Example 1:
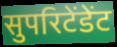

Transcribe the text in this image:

सुपरिटेंडेंट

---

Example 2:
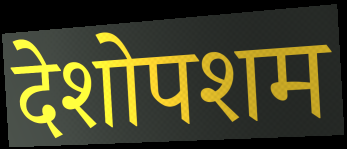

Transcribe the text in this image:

देशोपशम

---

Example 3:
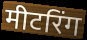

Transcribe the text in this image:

मीटरिंग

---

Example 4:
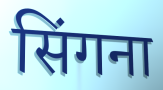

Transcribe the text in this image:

सिंगना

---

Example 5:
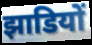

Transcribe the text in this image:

झाडियों